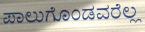
ಪಾಲುಗೊಂಡವರೆಲ್ಲ